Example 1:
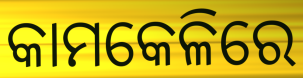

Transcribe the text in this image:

କାମକେଳିରେ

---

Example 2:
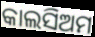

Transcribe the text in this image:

କାଲସିଅମ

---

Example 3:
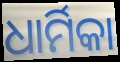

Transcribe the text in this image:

ଧାର୍ମିକା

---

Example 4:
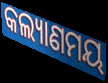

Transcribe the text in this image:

କଲ୍ୟାଣମୟ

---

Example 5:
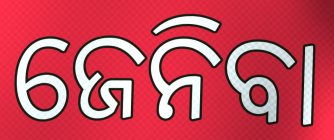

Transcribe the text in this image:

ଜେନିବା